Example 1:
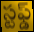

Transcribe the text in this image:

స్టఫ్డ్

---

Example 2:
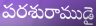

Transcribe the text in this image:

పరశురాముడై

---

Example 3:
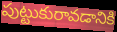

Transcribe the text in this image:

పుట్టుకురావడానికి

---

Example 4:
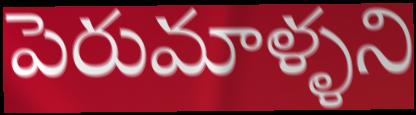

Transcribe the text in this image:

పెరుమాళ్ళని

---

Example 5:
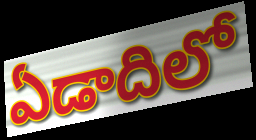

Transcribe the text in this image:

ఏడాదిలో